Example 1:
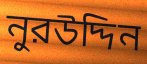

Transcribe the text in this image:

নুরউদ্দিন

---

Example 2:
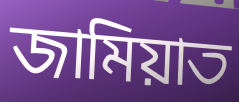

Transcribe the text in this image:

জামিয়াত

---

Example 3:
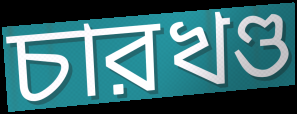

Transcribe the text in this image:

চারখণ্ড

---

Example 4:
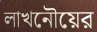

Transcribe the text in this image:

লাখনৌয়ের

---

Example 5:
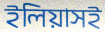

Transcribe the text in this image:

ইলিয়াসই